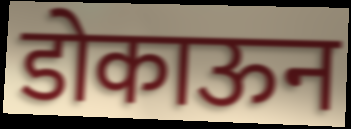
डोकाऊन